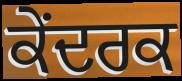
ਕੇਂਦਰਕ